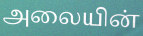
அலையின்